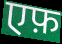
एफ़